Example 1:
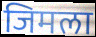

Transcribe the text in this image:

जिमला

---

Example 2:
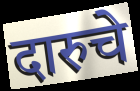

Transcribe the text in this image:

दारुचे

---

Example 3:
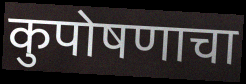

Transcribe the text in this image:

कुपोषणाचा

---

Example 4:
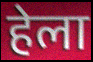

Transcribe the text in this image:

हेला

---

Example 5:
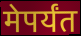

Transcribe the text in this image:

मेपर्यंत